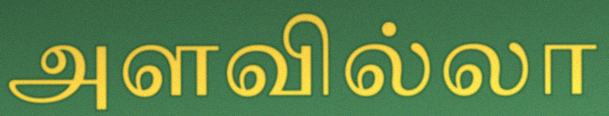
அளவில்லா